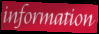
information